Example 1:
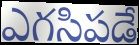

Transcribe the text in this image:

ఎగసిపడే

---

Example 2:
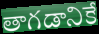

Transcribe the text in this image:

తాగడానికే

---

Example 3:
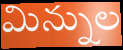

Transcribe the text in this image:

మిన్నుల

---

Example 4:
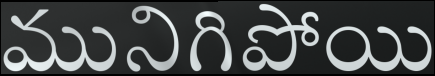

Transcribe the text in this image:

మునిగిపోయి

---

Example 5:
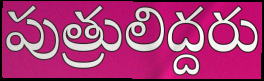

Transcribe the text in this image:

పుత్రులిద్దరు